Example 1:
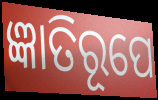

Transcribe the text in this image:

ଜ୍ଞାତିରୂପେ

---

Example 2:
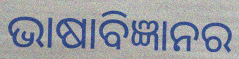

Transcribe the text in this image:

ଭାଷାବିଜ୍ଞାନର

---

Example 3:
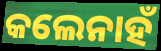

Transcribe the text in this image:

କଲେନାହଁ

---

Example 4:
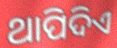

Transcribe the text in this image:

ଥାପିଦିଏ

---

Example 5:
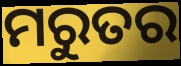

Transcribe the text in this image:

ମରୁତର